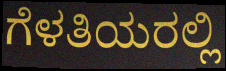
ಗೆಳತಿಯರಲ್ಲಿ